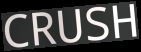
CRUSH